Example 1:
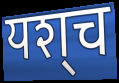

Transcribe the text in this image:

यश्च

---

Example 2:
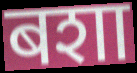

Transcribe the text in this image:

बशा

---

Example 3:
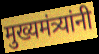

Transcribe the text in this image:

मुख्यमंत्र्यांनी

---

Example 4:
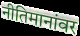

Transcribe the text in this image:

नीतिमानांवर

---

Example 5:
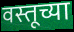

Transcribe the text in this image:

वस्तूच्या